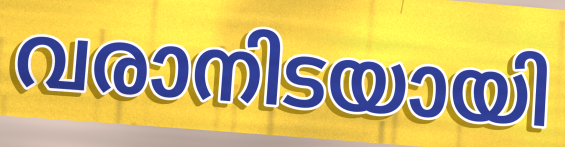
വരാനിടയായി